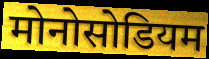
मोनोसोडियम